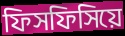
ফিসফিসিয়ে